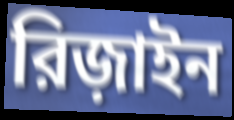
রিজ়াইন